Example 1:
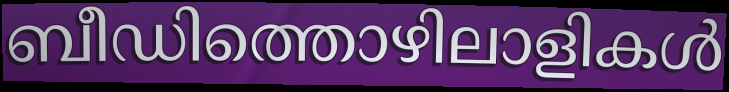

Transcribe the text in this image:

ബീഡിത്തൊഴിലാളികൾ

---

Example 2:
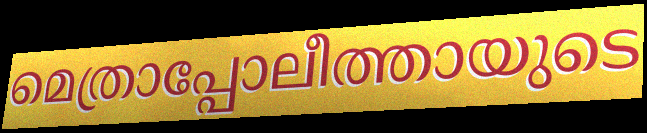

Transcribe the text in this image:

മെത്രാപ്പോലീത്തായുടെ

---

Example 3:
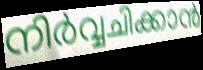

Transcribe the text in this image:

നിർവ്വചിക്കാൻ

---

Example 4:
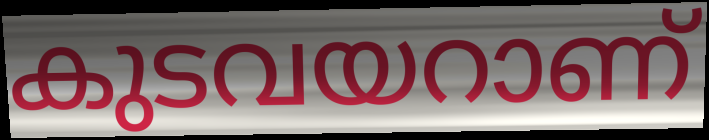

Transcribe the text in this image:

കുടവയറാണ്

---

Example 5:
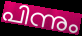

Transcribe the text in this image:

പിന്നും